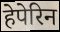
हेपेरिन